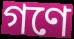
গণে